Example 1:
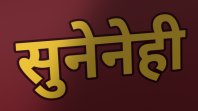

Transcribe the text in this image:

सुनेनेही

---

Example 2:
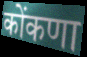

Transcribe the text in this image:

कोंकणा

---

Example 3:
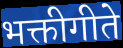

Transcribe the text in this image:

भक्तीगीते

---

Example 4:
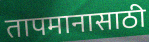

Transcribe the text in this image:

तापमानासाठी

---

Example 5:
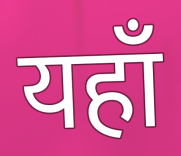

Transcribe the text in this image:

यहाँ